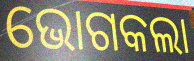
ଭୋଗକଲା